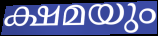
ക്ഷമയും